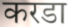
करडा